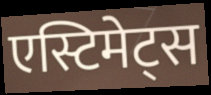
एस्टिमेट्स